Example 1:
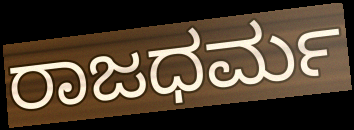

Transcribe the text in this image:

ರಾಜಧರ್ಮ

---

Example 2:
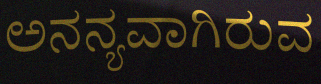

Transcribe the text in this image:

ಅನನ್ಯವಾಗಿರುವ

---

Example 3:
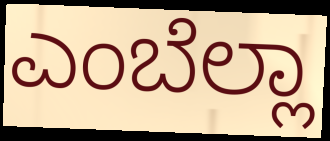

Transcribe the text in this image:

ಎಂಬೆಲ್ಲಾ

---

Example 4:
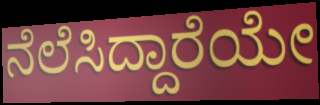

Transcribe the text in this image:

ನೆಲೆಸಿದ್ದಾರೆಯೇ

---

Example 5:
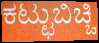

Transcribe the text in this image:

ಕಟ್ಟುಬಿಚ್ಚಿ